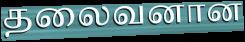
தலைவனான